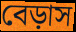
বেড়াস